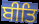
ਬੀਤਿ